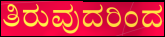
ತಿರುವುದರಿಂದ